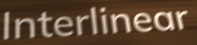
Interlinear